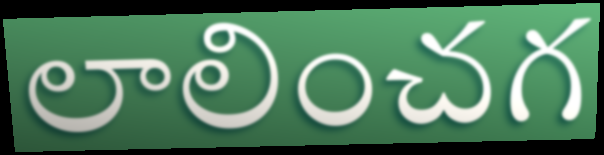
లాలించగ